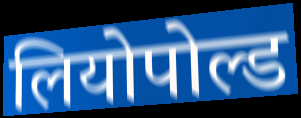
लियोपोल्ड